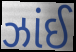
ઝાંઈ